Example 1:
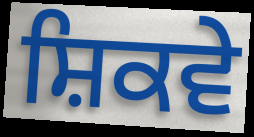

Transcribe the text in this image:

ਸ਼ਿਕਵੇ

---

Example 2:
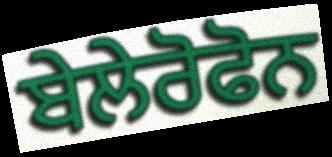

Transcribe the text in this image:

ਬੇਲੇਰੋਫੋਨ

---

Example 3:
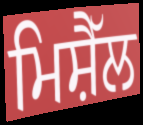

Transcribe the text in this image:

ਮਿਸ਼ੈੱਲ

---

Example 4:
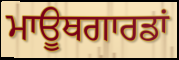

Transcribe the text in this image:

ਮਾਊਥਗਾਰਡਾਂ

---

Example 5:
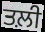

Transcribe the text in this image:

ਤਲ਼ੀ